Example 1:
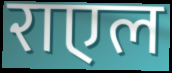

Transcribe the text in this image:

राएल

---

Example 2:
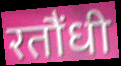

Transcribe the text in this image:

रतौंधी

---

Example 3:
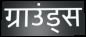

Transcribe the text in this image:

ग्राउंड्स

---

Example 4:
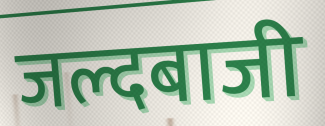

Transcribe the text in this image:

जल्दबाजी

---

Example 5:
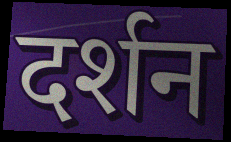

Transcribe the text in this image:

दर्शन